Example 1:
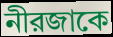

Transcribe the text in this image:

নীরজাকে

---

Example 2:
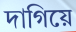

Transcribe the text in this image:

দাগিয়ে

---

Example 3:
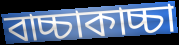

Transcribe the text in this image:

বাচ্চাকাচ্চা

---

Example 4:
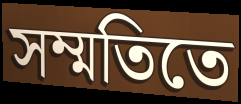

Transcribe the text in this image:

সম্মতিতে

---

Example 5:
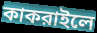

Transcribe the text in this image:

কাকরাইলে